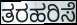
ತರಹರಿಸೆ